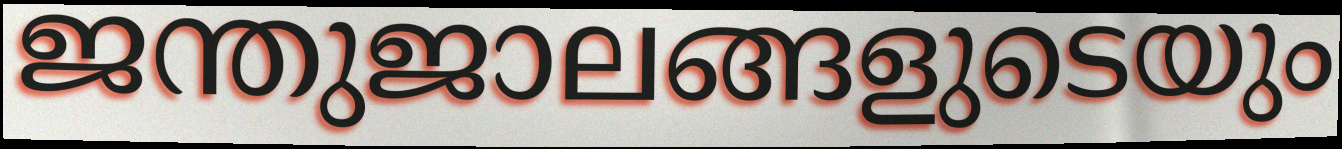
ജന്തുജാലങ്ങളുടെയും